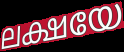
ലക്ഷയേ